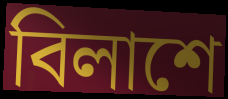
বিলাশে